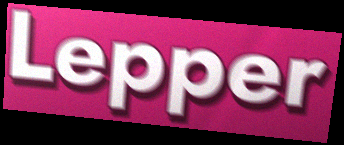
Lepper